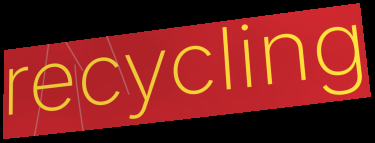
recycling